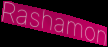
Rashamon